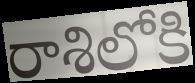
రాశిలోకి